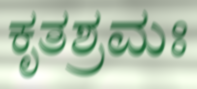
ಕೃತಶ್ರಮಃ